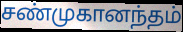
சண்முகானந்தம்